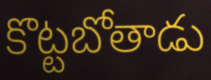
కొట్టబోతాడు